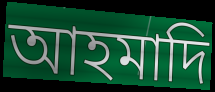
আহমাদি